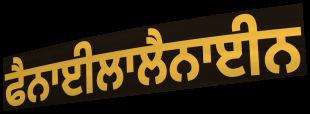
ਫੈਨਾਈਲਾਲੈਨਾਈਨ